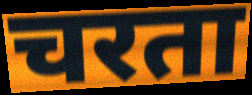
चरता